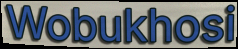
Wobukhosi